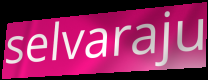
selvaraju